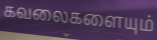
கவலைகளையும்